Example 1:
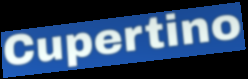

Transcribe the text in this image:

Cupertino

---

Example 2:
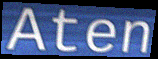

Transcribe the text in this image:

Aten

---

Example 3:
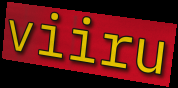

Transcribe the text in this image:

viiru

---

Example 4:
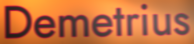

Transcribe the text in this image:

Demetrius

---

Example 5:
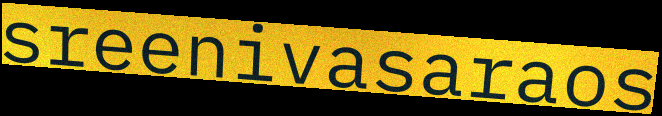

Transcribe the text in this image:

sreenivasaraos